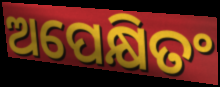
ଅପେକ୍ଷିତଂ